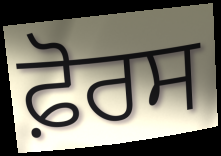
ਫ਼ੋਰਸ